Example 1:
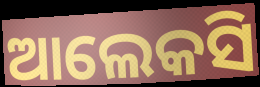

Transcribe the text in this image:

ଆଲେକସି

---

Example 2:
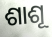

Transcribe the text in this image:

ଶାଶୂ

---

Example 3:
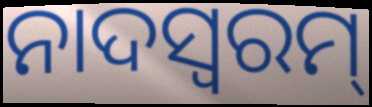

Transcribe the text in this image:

ନାଦସ୍ଵରମ୍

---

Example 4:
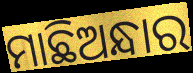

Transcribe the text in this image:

ମାଛିଅନ୍ଧାର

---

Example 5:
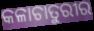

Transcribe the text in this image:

କଳାଚାତୁରୀର